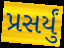
પ્રસર્યું